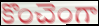
కొంచెంగా